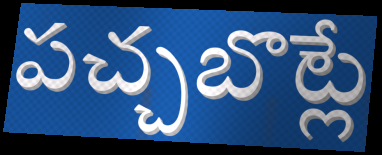
పచ్చబొట్లే